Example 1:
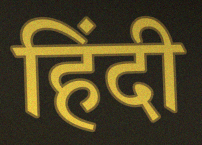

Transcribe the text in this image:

हिंदी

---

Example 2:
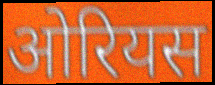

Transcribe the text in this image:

ओरियस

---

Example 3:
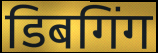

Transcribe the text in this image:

डिबगिंग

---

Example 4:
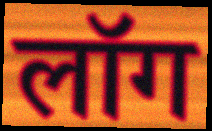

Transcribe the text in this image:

लॉग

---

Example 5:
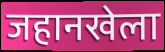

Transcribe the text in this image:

जहानखेला